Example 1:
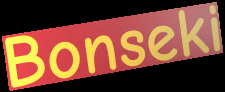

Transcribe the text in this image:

Bonseki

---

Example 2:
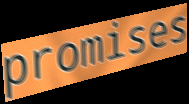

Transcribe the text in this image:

promises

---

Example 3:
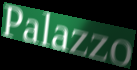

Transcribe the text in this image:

Palazzo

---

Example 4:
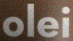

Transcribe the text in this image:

olei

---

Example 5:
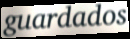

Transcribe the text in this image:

guardados